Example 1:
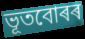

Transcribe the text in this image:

ভূতবোৰৰ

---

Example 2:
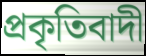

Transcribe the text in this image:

প্ৰকৃতিবাদী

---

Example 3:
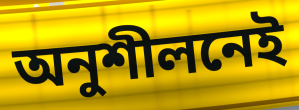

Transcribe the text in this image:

অনুশীলনেই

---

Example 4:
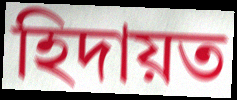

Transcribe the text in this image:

হিদায়ত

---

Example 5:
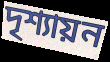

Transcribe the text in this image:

দৃশ্যায়ন